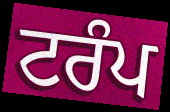
ਟਰੰਪ